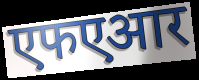
एफएआर